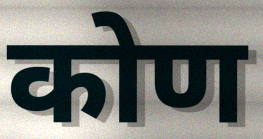
कोण